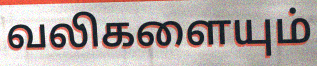
வலிகளையும்